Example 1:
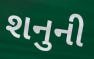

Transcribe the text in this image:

શનુની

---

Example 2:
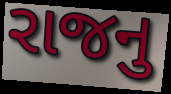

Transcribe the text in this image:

રાજનુ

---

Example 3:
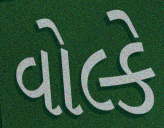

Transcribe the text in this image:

વોલ્કે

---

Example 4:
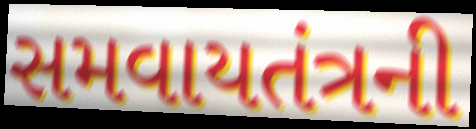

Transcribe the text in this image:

સમવાયતંત્રની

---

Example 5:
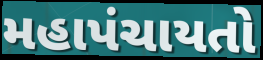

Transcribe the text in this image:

મહાપંચાયતો